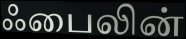
ஃபைலின்